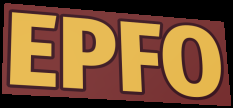
EPFO